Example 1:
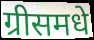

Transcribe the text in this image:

ग्रीसमधे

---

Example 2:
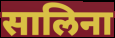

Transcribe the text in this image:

सालिना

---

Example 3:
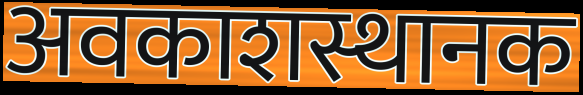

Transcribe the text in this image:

अवकाशस्थानक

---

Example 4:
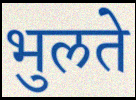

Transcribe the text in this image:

भुलते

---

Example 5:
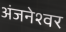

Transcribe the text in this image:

अंजनेश्वर